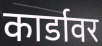
कार्डावर